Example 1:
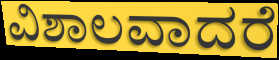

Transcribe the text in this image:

ವಿಶಾಲವಾದರೆ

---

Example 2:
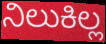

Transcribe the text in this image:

ನಿಲುಕಿಲ್ಲ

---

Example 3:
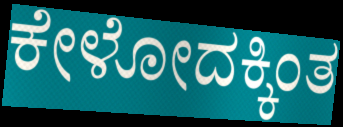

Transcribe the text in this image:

ಕೇಳೋದಕ್ಕಿಂತ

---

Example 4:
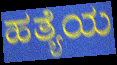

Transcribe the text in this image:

ಹತ್ಯೆಯ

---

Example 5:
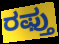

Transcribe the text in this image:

ರಫ್ತು